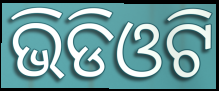
ଭିଡିଓଟି